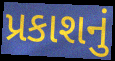
પ્રકાશનું